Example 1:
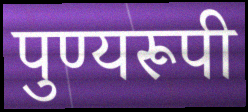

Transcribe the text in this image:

पुण्यरूपी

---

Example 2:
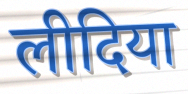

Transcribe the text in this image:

लीदिया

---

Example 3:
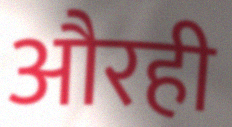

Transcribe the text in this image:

औरही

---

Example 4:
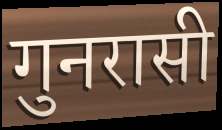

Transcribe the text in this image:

गुनरासी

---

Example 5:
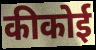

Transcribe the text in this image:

कीकोई